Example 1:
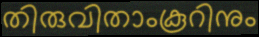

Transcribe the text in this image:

തിരുവിതാംകൂറിനും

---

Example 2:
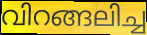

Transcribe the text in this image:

വിറങ്ങലിച്ച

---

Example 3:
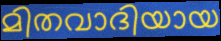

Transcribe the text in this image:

മിതവാദിയായ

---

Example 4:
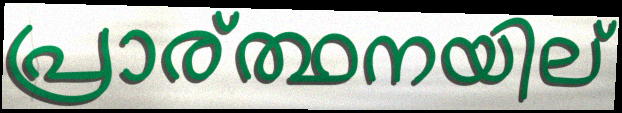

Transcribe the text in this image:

പ്രാര്ത്ഥനയില്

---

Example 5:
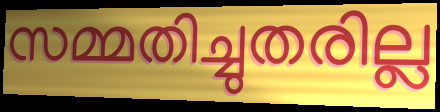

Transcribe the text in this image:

സമ്മതിച്ചുതരില്ല